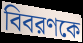
বিবরণকে